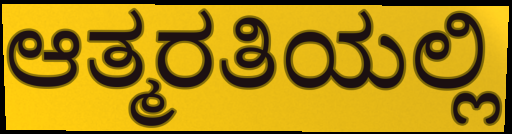
ಆತ್ಮರತಿಯಲ್ಲಿ